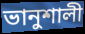
ভানুশালী